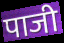
पाजी